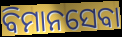
ବିମାନସେବା